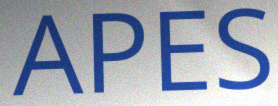
APES